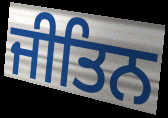
ਜੀਤਿਨ